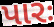
પારઃ